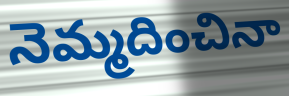
నెమ్మదించినా